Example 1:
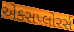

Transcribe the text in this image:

એક્સપ્લોરર્સ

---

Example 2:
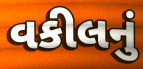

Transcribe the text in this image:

વકીલનું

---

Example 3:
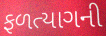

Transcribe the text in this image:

ફળત્યાગની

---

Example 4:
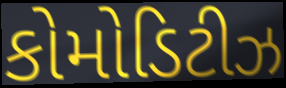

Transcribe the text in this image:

કોમોડિટીઝ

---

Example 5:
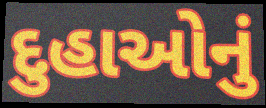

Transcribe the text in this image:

દુહાઓનું